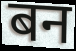
बन